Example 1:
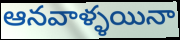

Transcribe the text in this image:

ఆనవాళ్ళయినా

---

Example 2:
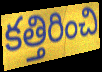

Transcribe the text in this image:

కత్తిరించి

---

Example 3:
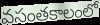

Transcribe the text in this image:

వసంతకాలంలో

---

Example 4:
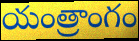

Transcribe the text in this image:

యంత్రాంగం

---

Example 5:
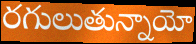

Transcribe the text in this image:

రగులుతున్నాయో